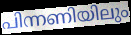
പിന്നണിയിലും